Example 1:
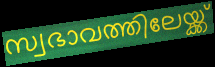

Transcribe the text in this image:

സ്വഭാവത്തിലേയ്ക്ക്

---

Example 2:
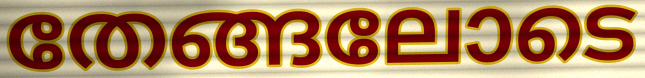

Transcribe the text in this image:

തേങ്ങലോടെ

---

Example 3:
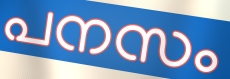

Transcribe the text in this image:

പനസം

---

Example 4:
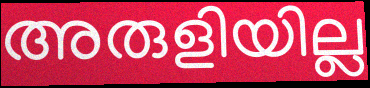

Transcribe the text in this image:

അരുളിയില്ല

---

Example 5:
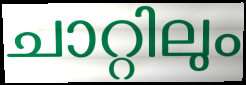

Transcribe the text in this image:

ചാറ്റിലും